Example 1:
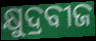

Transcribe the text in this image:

କ୍ଷୁଦ୍ରବୀଜ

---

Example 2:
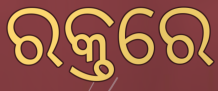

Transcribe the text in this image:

ରକ୍ତରେ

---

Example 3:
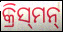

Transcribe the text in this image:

କ୍ରିସ୍‍ମନ୍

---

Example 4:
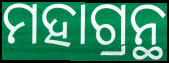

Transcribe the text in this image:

ମହାଗ୍ରନ୍ଥ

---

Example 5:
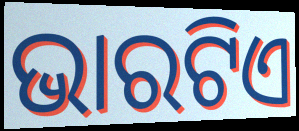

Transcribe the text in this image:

ଭାରଟିଏ